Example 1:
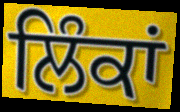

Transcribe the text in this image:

ਲਿੰਕਾਂ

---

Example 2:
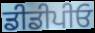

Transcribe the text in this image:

ਡੀਡੀਪੀਓ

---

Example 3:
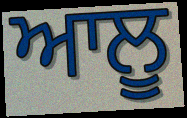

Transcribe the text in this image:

ਆਲੂ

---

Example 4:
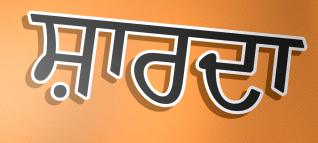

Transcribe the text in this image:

ਸ਼ਾਰਦਾ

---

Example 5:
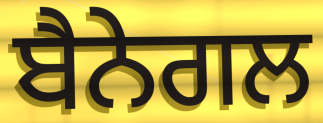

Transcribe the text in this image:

ਬੈਨੇਗਲ